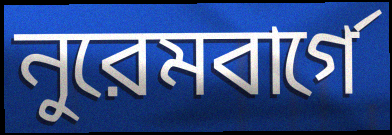
নুরেমবার্গে